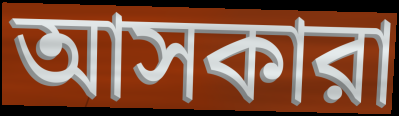
আসকারা